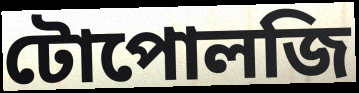
টোপোলজি